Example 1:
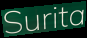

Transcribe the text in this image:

Surita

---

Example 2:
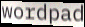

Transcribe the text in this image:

wordpad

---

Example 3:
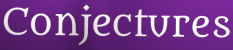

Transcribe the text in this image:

Conjectures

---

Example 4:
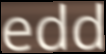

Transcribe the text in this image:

edd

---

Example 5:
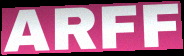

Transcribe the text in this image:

ARFF